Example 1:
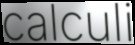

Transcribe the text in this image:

calculi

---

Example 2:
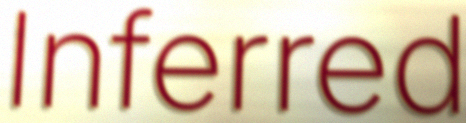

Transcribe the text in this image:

Inferred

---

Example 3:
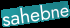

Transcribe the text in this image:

sahebne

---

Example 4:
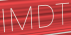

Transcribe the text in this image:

IMDT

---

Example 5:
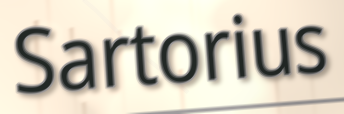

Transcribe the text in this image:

Sartorius